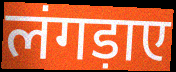
लंगड़ाए